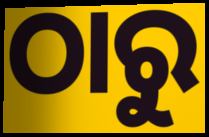
ଠାରୁ